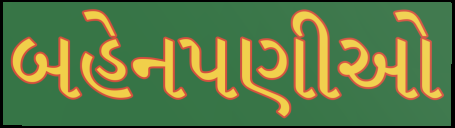
બહેનપણીઓ